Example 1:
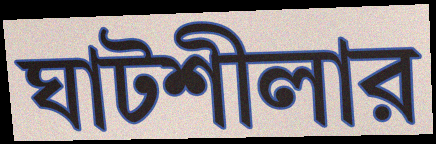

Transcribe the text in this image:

ঘাটশীলার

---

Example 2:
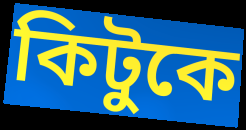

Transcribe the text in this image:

কিটুকে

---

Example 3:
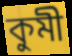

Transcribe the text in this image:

কুমী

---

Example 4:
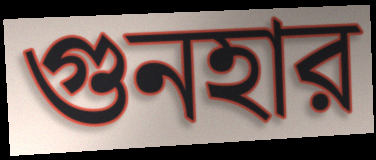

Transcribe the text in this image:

গুনহার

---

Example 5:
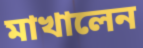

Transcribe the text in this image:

মাখালেন